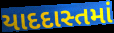
યાદદાસ્તમાં